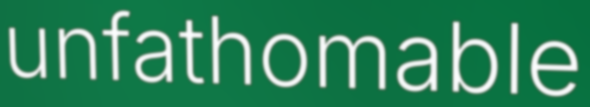
unfathomable